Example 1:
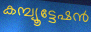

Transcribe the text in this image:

കമ്പ്യൂട്ടേഷൻ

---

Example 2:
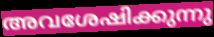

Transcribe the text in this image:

അവശേഷിക്കുന്നു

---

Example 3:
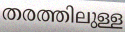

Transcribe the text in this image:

തരത്തിലുള്ള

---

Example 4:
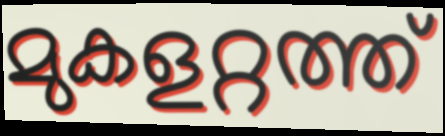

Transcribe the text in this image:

മുകളറ്റത്ത്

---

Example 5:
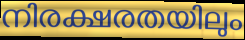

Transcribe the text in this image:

നിരക്ഷരതയിലും